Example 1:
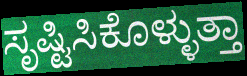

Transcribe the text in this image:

ಸೃಷ್ಟಿಸಿಕೊಳ್ಳುತ್ತಾ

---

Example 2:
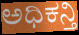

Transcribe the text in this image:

ಅಧಿಕನ್ತಿ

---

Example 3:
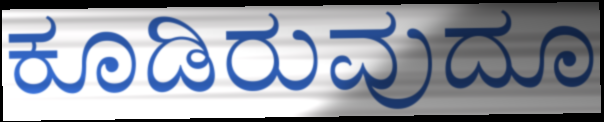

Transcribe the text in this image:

ಕೂಡಿರುವುದೂ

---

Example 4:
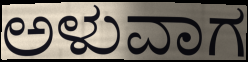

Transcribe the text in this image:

ಅಳುವಾಗ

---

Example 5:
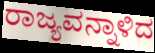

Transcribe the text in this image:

ರಾಜ್ಯವನ್ನಾಳಿದ